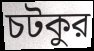
চটকুর